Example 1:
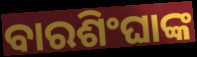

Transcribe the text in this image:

ବାରଶିଂଘାଙ୍କ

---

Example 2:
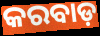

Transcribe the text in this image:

କରବାଡ଼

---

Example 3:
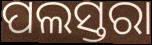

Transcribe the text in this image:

ପଲସ୍ତରା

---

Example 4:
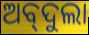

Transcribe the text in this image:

ଅବ୍‌ଦୁଲା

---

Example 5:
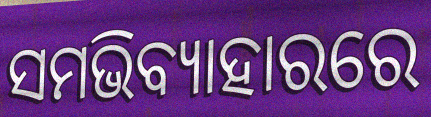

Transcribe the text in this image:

ସମଭିବ୍ୟାହାରରେ